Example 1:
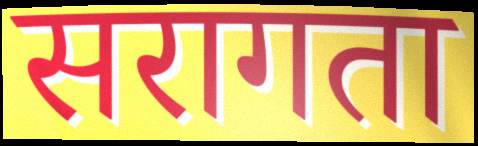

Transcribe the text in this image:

सरागता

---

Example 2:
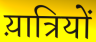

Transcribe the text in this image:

य़ात्रियों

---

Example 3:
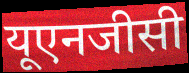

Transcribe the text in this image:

यूएनजीसी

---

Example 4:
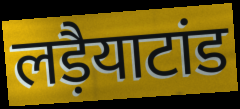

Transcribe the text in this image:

लड़ैयाटांड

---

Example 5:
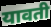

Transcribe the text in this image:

यावती